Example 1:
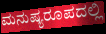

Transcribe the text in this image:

ಮನುಷ್ಯರೂಪದಲ್ಲಿ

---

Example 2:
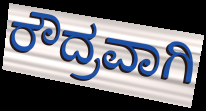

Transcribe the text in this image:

ರೌದ್ರವಾಗಿ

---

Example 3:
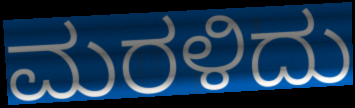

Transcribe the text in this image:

ಮರಳಿದು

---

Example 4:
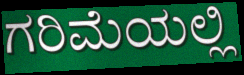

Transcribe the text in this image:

ಗರಿಮೆಯಲ್ಲಿ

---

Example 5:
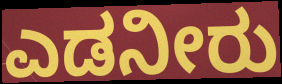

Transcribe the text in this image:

ಎಡನೀರು